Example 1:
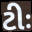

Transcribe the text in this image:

ટીઃ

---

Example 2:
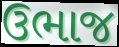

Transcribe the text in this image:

ઉભાજ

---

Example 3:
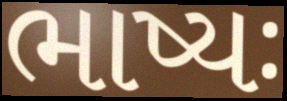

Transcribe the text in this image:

ભાષ્યઃ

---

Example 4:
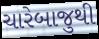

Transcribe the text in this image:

ચારેબાજુથી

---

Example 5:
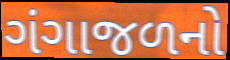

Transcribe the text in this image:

ગંગાજળનો